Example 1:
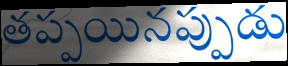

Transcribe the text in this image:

తప్పయినప్పుడు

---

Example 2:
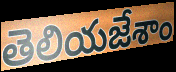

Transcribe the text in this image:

తెలియజేశాం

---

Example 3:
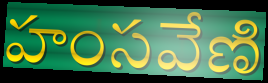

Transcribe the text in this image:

హంసవేణి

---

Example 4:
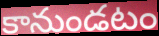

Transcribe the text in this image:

కానుండటం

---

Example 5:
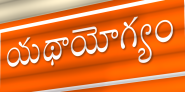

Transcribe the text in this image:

యథాయోగ్యం